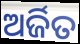
ଅର୍ଜିତ